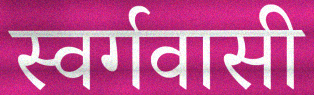
स्वर्गवासी